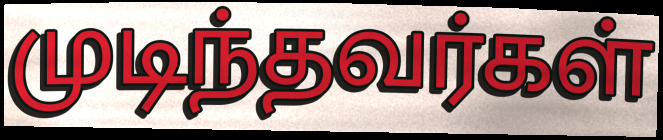
முடிந்தவர்கள்